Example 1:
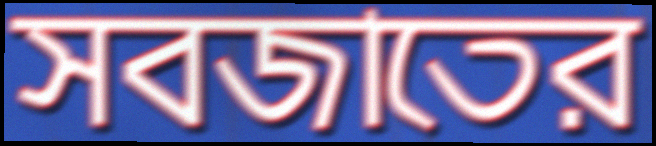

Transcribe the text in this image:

সবজাতের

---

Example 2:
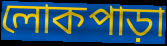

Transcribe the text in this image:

লোকপাড়া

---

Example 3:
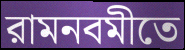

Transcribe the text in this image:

রামনবমীতে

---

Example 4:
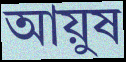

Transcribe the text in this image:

আয়ুষ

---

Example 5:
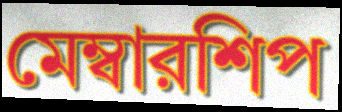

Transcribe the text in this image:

মেম্বারশিপ